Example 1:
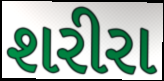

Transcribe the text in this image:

શરીરા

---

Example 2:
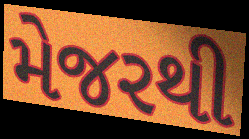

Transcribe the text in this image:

મેજરથી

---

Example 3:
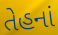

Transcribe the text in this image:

તેહનાં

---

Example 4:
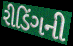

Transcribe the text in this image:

રીડિંગની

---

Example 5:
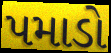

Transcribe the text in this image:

પમાડો